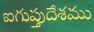
ఐగుప్తుదేశము